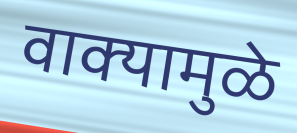
वाक्यामुळे